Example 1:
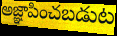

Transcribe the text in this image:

అజ్ఞాపించబడుట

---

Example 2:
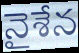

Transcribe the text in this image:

నైశేన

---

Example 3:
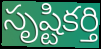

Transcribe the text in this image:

సృష్టికర్తి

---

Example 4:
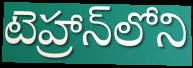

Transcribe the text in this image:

టెహ్రాన్‌లోని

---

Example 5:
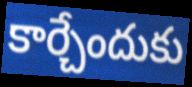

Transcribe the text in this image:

కార్చేందుకు